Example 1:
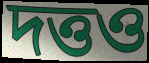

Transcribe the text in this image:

দত্তও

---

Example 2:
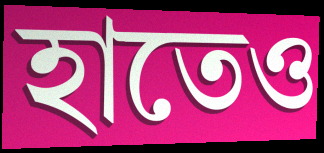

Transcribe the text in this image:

হাতেও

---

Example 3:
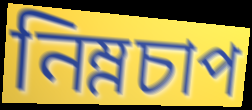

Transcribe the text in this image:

নিম্নচাপ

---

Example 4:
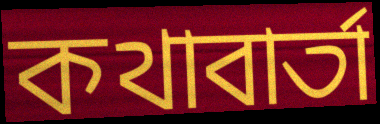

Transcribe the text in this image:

কথাবার্তা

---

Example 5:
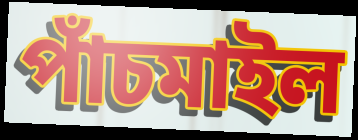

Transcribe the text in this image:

পাঁচমাইল